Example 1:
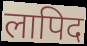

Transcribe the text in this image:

लापिद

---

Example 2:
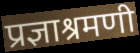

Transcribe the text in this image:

प्रज्ञाश्रमणी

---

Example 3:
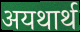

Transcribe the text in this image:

अयथार्थ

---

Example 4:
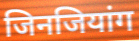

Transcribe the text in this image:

जिनजियांग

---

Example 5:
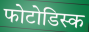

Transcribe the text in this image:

फोटोडिस्क